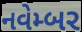
નવેમ્બર